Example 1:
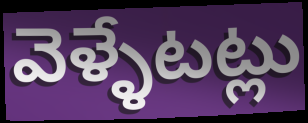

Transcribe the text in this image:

వెళ్ళేటట్లు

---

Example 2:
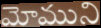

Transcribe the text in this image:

మోముని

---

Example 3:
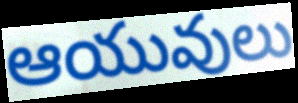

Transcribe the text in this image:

ఆయువులు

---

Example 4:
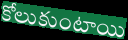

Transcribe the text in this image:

కోలుకుంటాయి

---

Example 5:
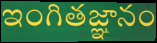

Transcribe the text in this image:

ఇంగితజ్ఞానం